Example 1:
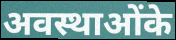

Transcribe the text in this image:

अवस्थाओंके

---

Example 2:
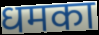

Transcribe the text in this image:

धमका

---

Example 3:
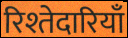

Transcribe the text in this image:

रिश्तेदारियाँ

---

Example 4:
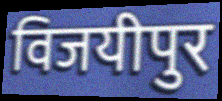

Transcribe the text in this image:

विजयीपुर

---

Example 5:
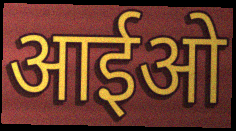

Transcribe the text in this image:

आईओ